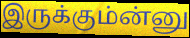
இருக்கும்ன்னு